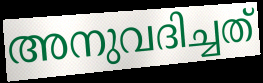
അനുവദിച്ചത്